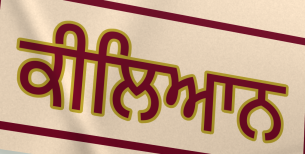
ਕੀਲਿਆਨ